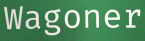
Wagoner